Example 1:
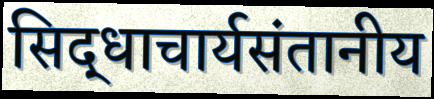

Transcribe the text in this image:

सिद्धाचार्यसंतानीय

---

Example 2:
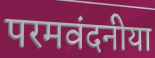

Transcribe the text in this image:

परमवंदनीया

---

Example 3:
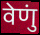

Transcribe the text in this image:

वेणुं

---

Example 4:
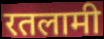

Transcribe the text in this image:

रतलामी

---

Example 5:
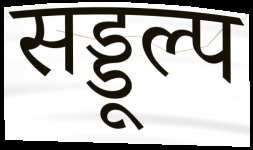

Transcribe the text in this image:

सड्डूल्प